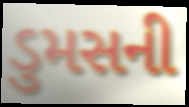
ડુમસની